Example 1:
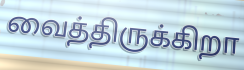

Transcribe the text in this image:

வைத்திருக்கிறா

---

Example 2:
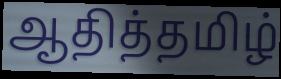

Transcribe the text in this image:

ஆதித்தமிழ்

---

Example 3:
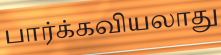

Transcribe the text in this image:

பார்க்கவியலாது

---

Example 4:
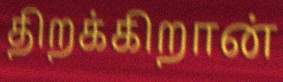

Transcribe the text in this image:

திறக்கிறான்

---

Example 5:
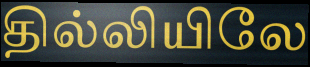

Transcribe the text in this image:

தில்லியிலே